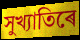
সুখ্যাতিৰে